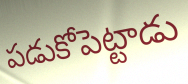
పడుకోపెట్టాడు